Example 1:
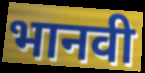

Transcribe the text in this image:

भानवी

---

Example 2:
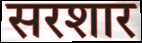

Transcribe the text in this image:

सरशार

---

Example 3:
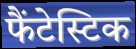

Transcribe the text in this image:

फैंटेस्टिक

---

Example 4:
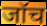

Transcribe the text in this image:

जॉच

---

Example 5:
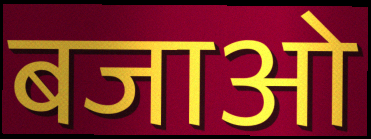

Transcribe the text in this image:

बजाओ